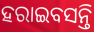
ହରାଇବସନ୍ତି